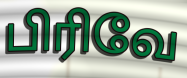
பிரிவே